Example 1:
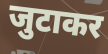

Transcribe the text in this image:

जुटाकर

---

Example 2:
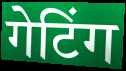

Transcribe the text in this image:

गेटिंग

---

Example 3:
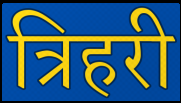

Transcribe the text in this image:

त्रिहरी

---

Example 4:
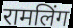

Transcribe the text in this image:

रामलिंग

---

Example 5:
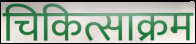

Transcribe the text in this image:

चिकित्साक्रम